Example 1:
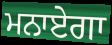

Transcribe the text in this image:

ਮਨਾਏਗਾ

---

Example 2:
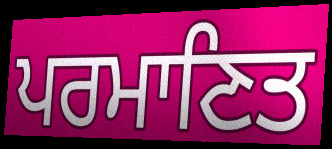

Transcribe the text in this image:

ਪਰਮਾਣਿਤ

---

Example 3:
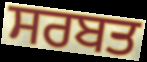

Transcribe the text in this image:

ਸਰਬਤ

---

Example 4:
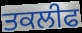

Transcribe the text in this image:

ਤਕਲੀਫ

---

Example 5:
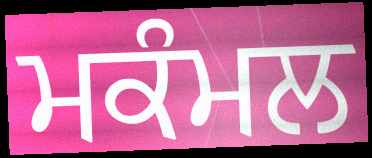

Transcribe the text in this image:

ਮਕੰਮਲ